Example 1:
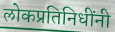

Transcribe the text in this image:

लोकप्रतिनिधींनी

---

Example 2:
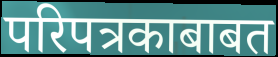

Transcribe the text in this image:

परिपत्रकाबाबत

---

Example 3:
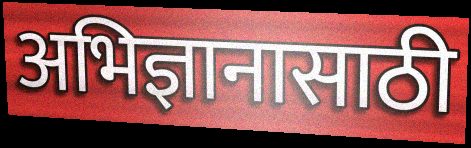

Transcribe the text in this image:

अभिज्ञानासाठी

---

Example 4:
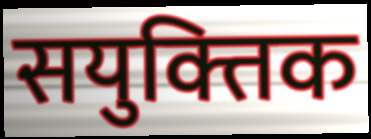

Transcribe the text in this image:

सयुक्तिक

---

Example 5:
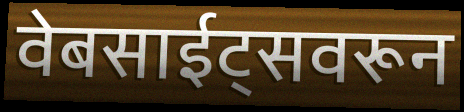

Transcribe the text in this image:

वेबसाईट्सवरून